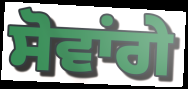
ਸੋਵਾਂਗੇ